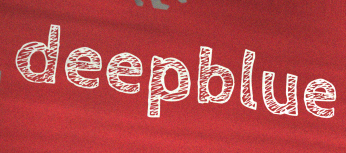
deepblue